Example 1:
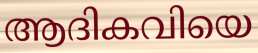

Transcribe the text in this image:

ആദികവിയെ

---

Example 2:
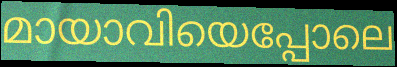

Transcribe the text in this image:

മായാവിയെപ്പോലെ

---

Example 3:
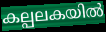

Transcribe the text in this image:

കല്പലകയിൽ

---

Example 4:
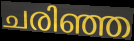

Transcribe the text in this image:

ചരിഞ്ഞ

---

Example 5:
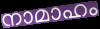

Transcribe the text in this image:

നാമാഹം